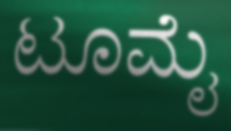
ಟೂಮೈ